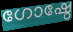
ഗോഷ്ഠേ